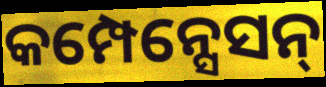
କମ୍ପେନ୍ସେସନ୍